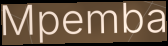
Mpemba